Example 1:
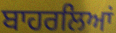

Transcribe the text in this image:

ਬਾਹਰਲਿਆਂ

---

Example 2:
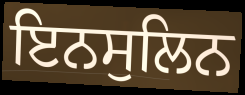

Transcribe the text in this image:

ਇਨਸੁਲਿਨ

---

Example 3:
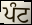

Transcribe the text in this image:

ਪੰਟ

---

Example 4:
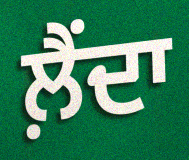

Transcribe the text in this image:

ਲ਼ੈਂਦਾ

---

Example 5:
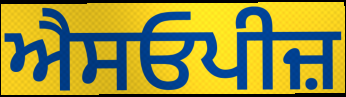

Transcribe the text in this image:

ਐਸਓਪੀਜ਼